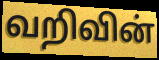
வறிவின்